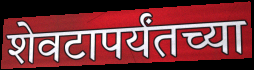
शेवटापर्यंतच्या